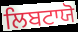
ਲਿਬਟਾਯੋ